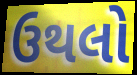
ઉથલો